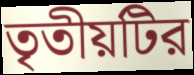
তৃতীয়টির